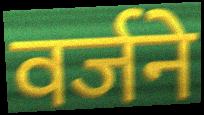
वर्जने